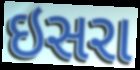
ઇસરા